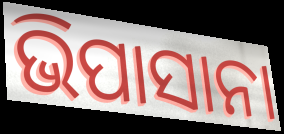
ଭିପାସାନା